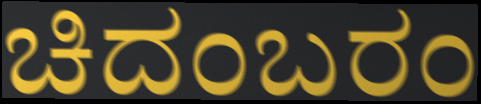
ಚಿದಂಬರಂ